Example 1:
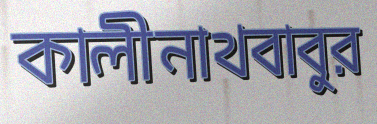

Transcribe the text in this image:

কালীনাথবাবুর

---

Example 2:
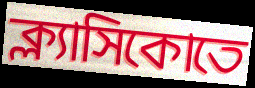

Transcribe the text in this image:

ক্ল্যাসিকোতে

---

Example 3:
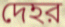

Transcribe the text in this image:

দেহর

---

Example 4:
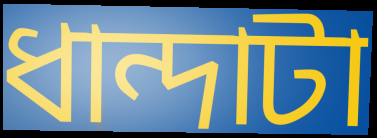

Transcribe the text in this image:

ধান্দাটা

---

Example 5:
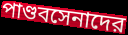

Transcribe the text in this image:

পাণ্ডবসেনাদের